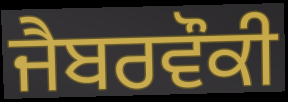
ਜੈਬਰਵੌਕੀ